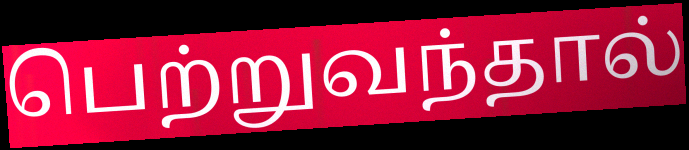
பெற்றுவந்தால்